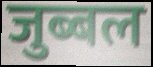
जुब्बल